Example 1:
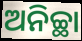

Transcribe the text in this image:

ଅନିଚ୍ଛା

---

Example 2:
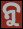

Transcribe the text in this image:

ନୁ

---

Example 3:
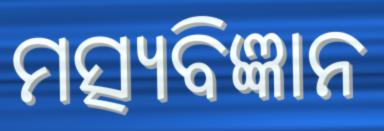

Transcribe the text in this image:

ମତ୍ସ୍ୟବିଜ୍ଞାନ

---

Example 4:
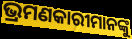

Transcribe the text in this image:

ଭ୍ରମଣକାରୀମାନଙ୍କୁ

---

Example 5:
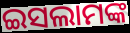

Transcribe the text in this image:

ଇସଲାମଙ୍କ